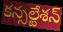
కన్సల్టేశన్